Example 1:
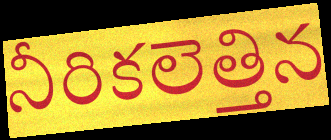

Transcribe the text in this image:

నీరికలెత్తిన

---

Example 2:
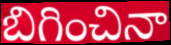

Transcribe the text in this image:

బిగించినా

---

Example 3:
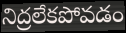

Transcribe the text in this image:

నిద్రలేకపోవడం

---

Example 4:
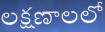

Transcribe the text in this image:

లక్షణాలలో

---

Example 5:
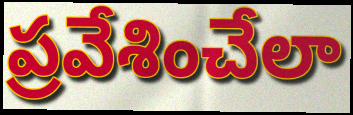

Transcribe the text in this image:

ప్రవేశించేలా